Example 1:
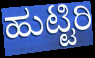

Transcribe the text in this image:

ಹುಟ್ಟಿರಿ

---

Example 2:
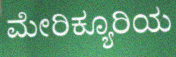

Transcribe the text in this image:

ಮೇರಿಕ್ಯೂರಿಯ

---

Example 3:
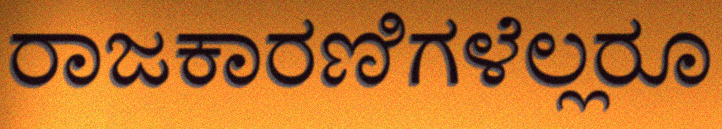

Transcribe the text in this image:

ರಾಜಕಾರಣಿಗಳೆಲ್ಲರೂ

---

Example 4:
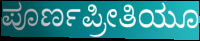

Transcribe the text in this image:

ಪೂರ್ಣಪ್ರೀತಿಯೂ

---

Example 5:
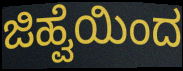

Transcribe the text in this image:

ಜಿಹ್ವೆಯಿಂದ